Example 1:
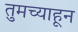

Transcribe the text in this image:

तुमच्याहून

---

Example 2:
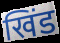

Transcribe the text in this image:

खिंड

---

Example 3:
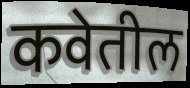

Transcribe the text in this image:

कवेतील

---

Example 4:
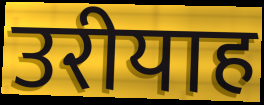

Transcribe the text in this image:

उरीयाह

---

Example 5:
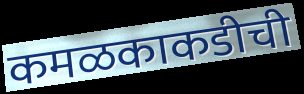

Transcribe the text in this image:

कमळकाकडीची